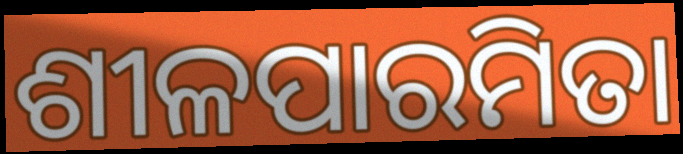
ଶୀଳପାରମିତା